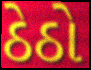
ઠેઠો